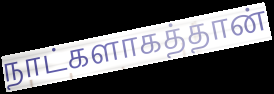
நாட்களாகத்தான்